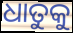
ଧାତୁକୁ